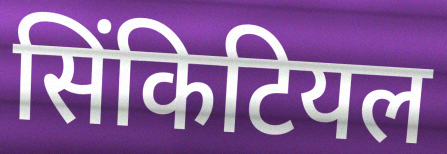
सिंकिटियल